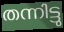
തന്നിട്ടു